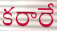
కరారే